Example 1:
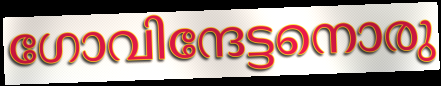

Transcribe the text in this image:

ഗോവിന്ദേട്ടനൊരു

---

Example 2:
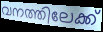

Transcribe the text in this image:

വനത്തിലേക്ക്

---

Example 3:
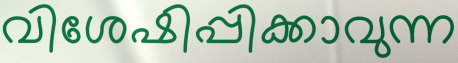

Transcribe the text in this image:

വിശേഷിപ്പിക്കാവുന്ന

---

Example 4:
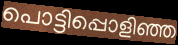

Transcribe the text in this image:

പൊട്ടിപ്പൊളിഞ്ഞ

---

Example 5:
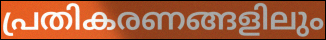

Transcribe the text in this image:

പ്രതികരണങ്ങളിലും